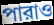
পারাও